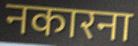
नकारना